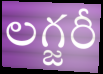
లగ్జరీ